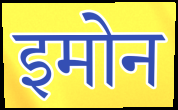
इमोन